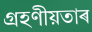
গ্ৰহণীয়তাৰ